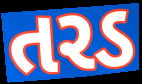
તરડ